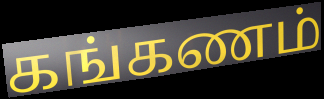
கங்கணம்